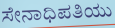
ಸೇನಾಧಿಪತಿಯು